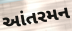
આંતરમન